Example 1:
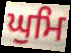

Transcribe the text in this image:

ਘੁਮਿ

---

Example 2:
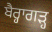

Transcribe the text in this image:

ਬੈਰ੍ਹਾਗੜ੍ਹ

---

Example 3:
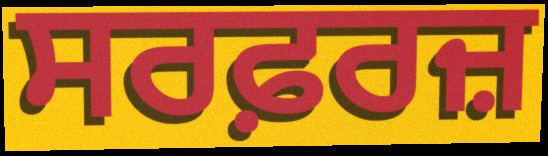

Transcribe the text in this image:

ਸਰਫ਼ਰਜ਼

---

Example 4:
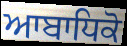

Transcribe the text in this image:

ਆਬਾਧਿਕੋ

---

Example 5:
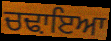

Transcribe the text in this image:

ਚਢ਼ਾਇਆ